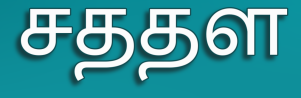
சததள